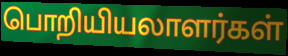
பொறியியலாளர்கள்